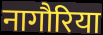
नागौरिया